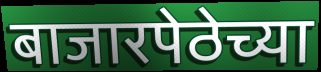
बाजारपेठेच्या